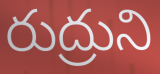
రుద్రుని